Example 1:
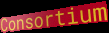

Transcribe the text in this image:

Consortium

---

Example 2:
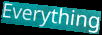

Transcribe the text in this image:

Everything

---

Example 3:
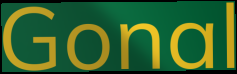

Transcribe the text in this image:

Gonal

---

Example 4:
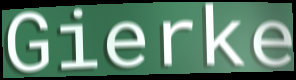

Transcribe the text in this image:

Gierke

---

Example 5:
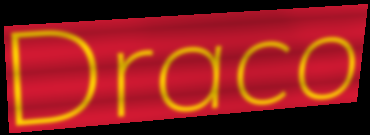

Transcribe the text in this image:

Draco